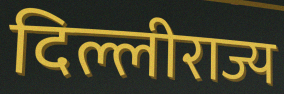
दिल्लीराज्य